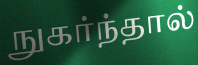
நுகர்ந்தால்